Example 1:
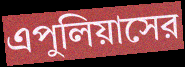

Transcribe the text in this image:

এপুলিয়াসের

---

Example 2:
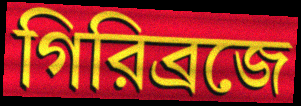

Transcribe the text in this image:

গিরিব্রজে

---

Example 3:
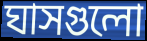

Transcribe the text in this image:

ঘাসগুলো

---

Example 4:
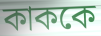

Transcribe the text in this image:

কাককে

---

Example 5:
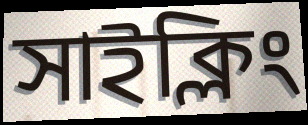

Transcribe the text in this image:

সাইক্লিং